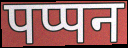
पप्पन